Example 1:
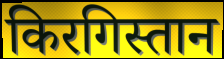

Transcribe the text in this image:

किरगिस्तान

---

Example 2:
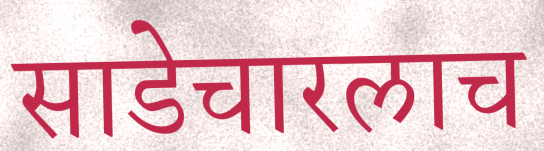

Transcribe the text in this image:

साडेचारलाच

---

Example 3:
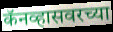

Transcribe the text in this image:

कॅनव्हासवरच्या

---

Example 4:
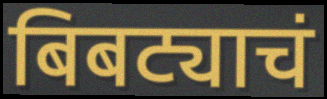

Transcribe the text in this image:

बिबट्याचं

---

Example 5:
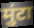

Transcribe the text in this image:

मुंटा